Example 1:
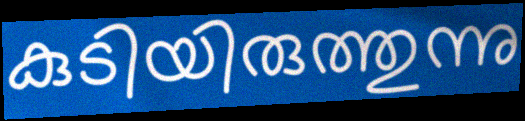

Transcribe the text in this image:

കുടിയിരുത്തുന്നു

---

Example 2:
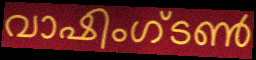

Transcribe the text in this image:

വാഷിംഗ്ടൺ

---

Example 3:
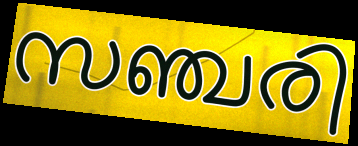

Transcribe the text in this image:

സഞ്ചരി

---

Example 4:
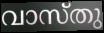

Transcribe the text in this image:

വാസ്തു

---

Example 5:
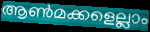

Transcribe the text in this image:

ആൺമക്കളെല്ലാം